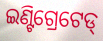
ଇଣ୍ଟିଗ୍ରେଟେଡ୍